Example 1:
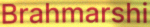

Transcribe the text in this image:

Brahmarshi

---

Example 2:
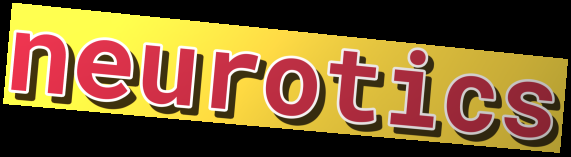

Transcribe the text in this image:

neurotics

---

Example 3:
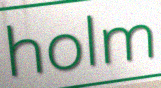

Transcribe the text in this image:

holm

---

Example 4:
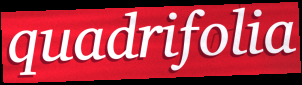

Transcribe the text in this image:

quadrifolia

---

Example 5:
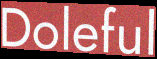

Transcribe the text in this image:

Doleful